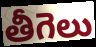
తీగెలు